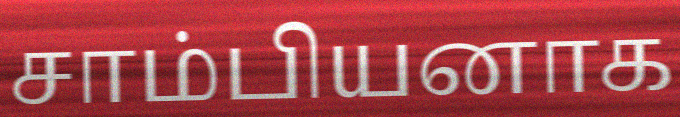
சாம்பியனாக